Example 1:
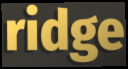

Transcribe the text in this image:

ridge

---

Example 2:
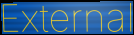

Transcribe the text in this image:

External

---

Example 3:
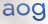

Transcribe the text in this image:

aog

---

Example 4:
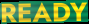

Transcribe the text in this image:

READY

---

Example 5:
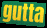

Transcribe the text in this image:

gutta